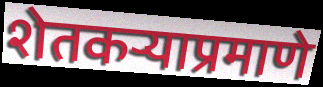
शेतकऱ्याप्रमाणे